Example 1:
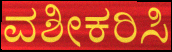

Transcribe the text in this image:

ವಶೀಕರಿಸಿ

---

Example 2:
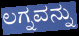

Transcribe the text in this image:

ಲಗ್ನವನ್ನು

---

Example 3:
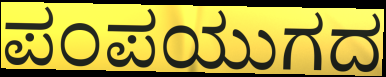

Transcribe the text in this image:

ಪಂಪಯುಗದ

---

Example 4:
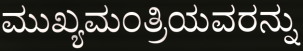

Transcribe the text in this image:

ಮುಖ್ಯಮಂತ್ರಿಯವರನ್ನು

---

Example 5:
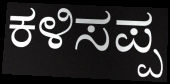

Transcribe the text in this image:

ಕಳಿಸಪ್ಪ